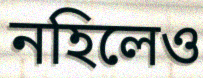
নহিলেও